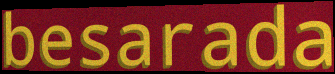
besarada